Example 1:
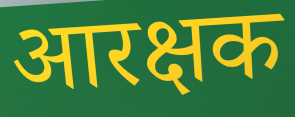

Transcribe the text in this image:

आरक्षक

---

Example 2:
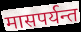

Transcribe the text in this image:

मासपर्यन्त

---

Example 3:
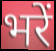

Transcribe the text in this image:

भरें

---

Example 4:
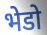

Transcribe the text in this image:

भेडो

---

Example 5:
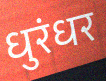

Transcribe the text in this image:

धुरंधर